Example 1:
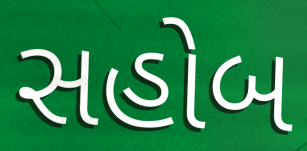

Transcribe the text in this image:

સહોબ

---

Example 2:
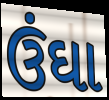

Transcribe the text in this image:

ઉંઘા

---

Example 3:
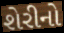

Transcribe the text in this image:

શેરીનો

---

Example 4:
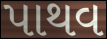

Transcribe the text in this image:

પાથવ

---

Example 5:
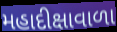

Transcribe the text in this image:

મહાદીક્ષાવાળા